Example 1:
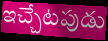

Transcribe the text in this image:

ఇచ్చేటపుడు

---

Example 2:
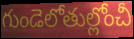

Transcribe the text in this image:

గుండెలోతుల్లోంచీ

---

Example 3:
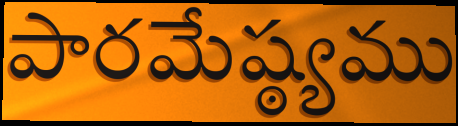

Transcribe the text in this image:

పారమేష్ఠ్యము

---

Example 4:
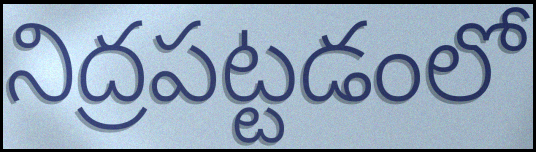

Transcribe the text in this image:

నిద్రపట్టడంలో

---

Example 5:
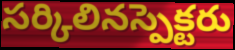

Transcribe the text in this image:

సర్కిలినస్పెక్టరు